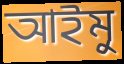
আইমু